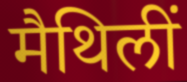
मैथिलीं